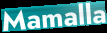
Mamalla